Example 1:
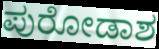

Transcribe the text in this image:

ಪುರೋಡಾಶ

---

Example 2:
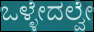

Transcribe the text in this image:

ಒಳ್ಳೇದಲ್ವೇ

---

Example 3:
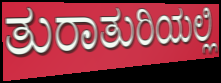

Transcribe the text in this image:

ತುರಾತುರಿಯಲ್ಲಿ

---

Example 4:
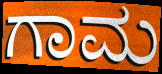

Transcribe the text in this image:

ಗಾಮ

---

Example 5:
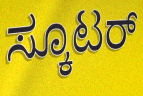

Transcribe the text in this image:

ಸ್ಕೂಟರ್